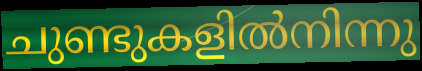
ചുണ്ടുകളിൽനിന്നു